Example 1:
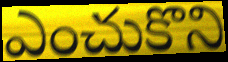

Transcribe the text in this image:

ఎంచుకొని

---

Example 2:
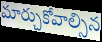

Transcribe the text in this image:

మార్చుకోవాల్సిన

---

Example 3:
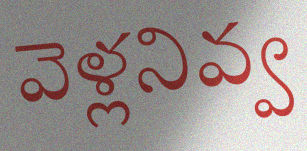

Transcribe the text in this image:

వెళ్లనివ్వ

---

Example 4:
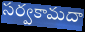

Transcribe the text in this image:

సర్వకామదా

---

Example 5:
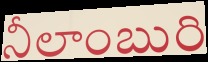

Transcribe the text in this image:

నీలాంబురి